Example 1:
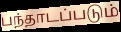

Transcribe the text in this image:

பந்தாடப்படும்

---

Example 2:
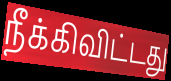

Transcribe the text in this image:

நீக்கிவிட்டது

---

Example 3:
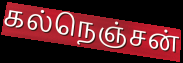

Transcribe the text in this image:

கல்நெஞ்சன்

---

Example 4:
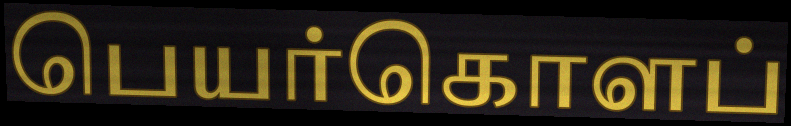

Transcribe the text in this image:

பெயர்கொளப்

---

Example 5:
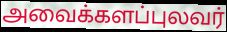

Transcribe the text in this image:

அவைக்களப்புலவர்